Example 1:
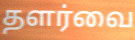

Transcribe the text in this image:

தளர்வை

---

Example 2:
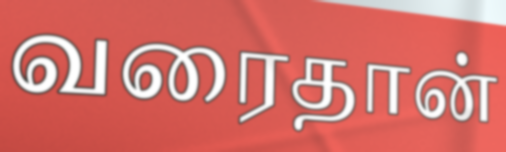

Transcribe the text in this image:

வரைதான்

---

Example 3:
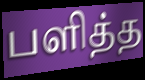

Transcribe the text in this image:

பளித்த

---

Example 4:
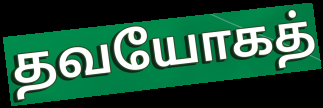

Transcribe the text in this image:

தவயோகத்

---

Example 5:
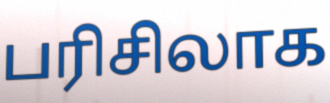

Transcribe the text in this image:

பரிசிலாக